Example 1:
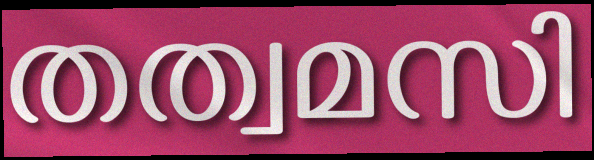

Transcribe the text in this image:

തത്വമസി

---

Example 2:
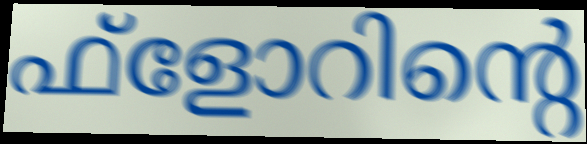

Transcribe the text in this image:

ഫ്ളോറിന്റെ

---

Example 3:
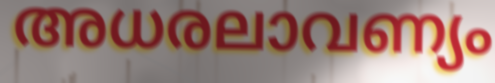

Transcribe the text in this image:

അധരലാവണ്യം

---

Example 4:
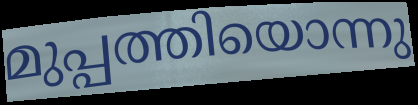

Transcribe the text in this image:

മുപ്പത്തിയൊന്നു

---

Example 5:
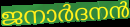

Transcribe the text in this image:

ജനാർദനൻ